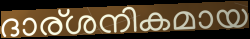
ദാര്ശനികമായ